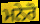
ਮਨੇਰੋ